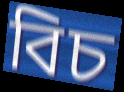
বিচ